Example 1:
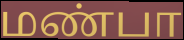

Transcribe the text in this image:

மண்பா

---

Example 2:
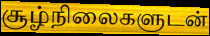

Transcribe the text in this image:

சூழ்நிலைகளுடன்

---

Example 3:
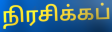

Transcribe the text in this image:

நிரசிக்கப்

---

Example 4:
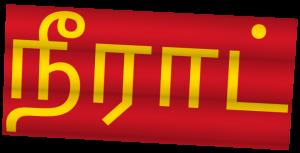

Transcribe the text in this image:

நீராட்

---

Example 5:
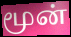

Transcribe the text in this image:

மூன்